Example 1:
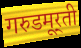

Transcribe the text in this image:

गरुडमूर्ती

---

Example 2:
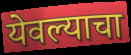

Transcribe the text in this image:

येवल्याचा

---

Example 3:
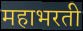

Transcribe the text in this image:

महाभरती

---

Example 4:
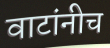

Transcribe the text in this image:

वाटांनीच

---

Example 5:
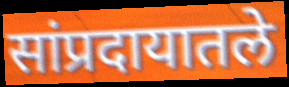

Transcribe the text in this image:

सांप्रदायातले